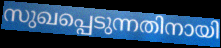
സുഖപ്പെടുന്നതിനായി